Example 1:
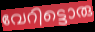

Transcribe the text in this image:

വേറിട്ടൊരു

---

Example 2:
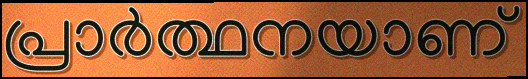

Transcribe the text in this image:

പ്രാർത്ഥനയാണ്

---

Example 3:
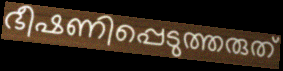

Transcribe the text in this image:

ഭീഷണിപ്പെടുത്തരുത്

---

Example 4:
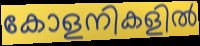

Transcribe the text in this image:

കോളനികളിൽ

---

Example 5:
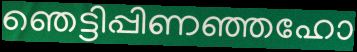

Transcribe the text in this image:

ഞെട്ടിപ്പിണഞ്ഞഹോ